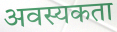
अवस्यकता